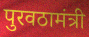
पुरवठामंत्री